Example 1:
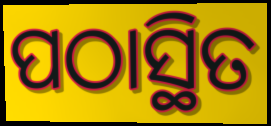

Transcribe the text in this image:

ପଠାସ୍ଥିତ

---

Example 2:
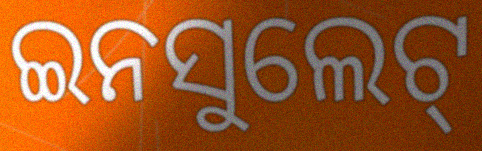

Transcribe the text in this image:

ଇନସୁଲେଟ୍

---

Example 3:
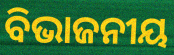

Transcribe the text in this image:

ବିଭାଜନୀୟ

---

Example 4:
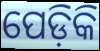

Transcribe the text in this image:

ପେଡ଼ିକି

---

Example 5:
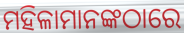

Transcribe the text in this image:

ମହିଳାମାନଙ୍କଠାରେ